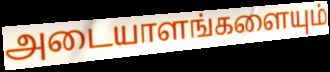
அடையாளங்களையும்